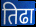
तिढा